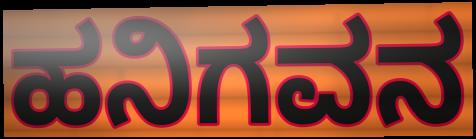
ಹನಿಗವನ